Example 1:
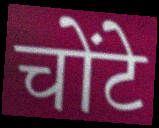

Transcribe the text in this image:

चोंटे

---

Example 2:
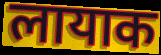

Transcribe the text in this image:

लायाक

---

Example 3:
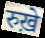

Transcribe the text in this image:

रुख़े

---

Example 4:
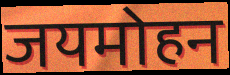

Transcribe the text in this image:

जयमोहन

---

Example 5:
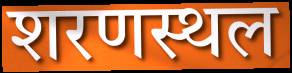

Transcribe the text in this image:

शरणस्थल